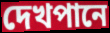
দেখপানে